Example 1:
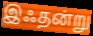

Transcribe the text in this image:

இஃதன்று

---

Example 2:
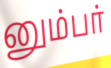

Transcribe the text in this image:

னும்பர்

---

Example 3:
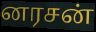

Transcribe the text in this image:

னரசன்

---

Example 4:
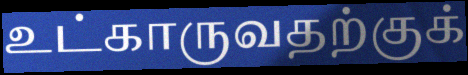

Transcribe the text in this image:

உட்காருவதற்குக்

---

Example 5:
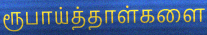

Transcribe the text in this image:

ரூபாய்த்தாள்களை